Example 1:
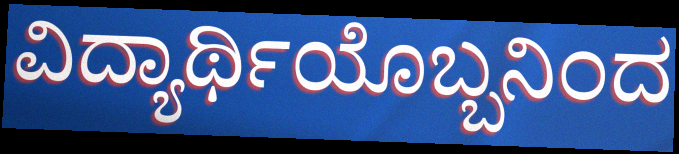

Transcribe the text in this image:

ವಿದ್ಯಾರ್ಥಿಯೊಬ್ಬನಿಂದ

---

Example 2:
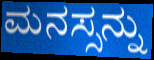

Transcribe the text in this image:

ಮನಸ್ಸನ್ನು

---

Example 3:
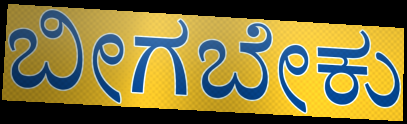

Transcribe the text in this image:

ಬೀಗಬೇಕು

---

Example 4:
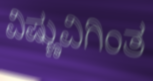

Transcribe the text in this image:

ವಿಷ್ಣುವಿಗಿಂತ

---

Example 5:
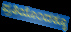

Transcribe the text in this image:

ಪ್ರತಿಯೊಂದಕ್ಕೂ